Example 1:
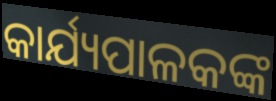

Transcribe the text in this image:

କାର୍ଯ୍ୟପାଳକଙ୍କ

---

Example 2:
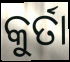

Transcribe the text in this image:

କୁର୍ତା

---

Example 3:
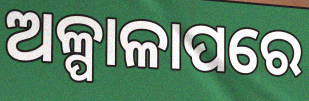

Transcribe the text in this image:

ଅଳ୍ପାଳାପରେ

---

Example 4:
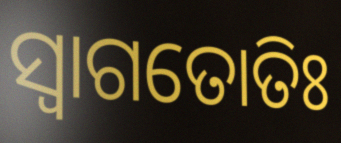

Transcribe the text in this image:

ସ୍ଵାଗତୋତିଃ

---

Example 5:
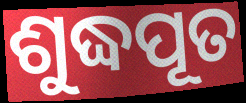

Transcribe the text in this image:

ଶୁଦ୍ଧପୂତ